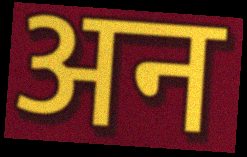
अन